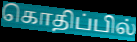
கொதிப்பில்